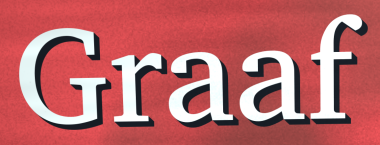
Graaf